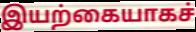
இயற்கையாகச்